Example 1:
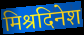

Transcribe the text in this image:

मिश्रदिनेश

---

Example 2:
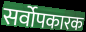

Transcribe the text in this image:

सर्वोपकारक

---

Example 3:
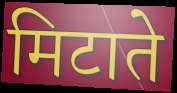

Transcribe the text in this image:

मिटाते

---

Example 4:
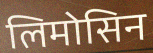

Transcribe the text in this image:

लिमोसिन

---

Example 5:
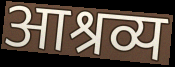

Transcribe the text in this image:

आश्रव्य